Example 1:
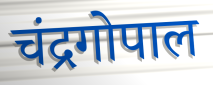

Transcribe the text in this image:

चंद्रगोपाल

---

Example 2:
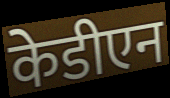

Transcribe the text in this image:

केडीएन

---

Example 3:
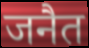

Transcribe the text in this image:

जनैत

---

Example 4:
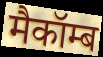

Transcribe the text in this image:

मैकॉम्ब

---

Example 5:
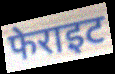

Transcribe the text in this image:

फेराइट